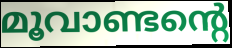
മൂവാണ്ടന്റെ